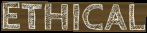
ETHICAL